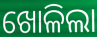
ଖୋଳିଲା